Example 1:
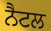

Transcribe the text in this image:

ਨੈਟਲ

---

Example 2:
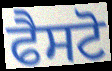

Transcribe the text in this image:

ਫੈਸਟੋ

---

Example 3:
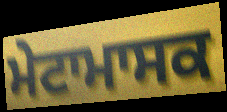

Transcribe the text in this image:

ਮੇਟਾਮਾਸਕ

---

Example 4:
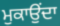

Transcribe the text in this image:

ਮੁਕਾਉਂਦਾ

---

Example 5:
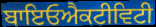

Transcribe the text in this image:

ਬਾਇਓਐਕਟੀਵਿਟੀ